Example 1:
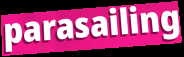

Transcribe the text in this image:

parasailing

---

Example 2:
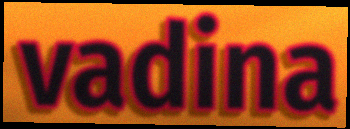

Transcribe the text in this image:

vadina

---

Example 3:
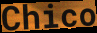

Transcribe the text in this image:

Chico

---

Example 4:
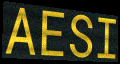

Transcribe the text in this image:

AESI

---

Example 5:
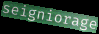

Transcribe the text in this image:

seigniorage